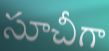
సూచీగా